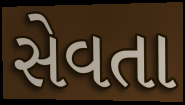
સેવતા